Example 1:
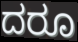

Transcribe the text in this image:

ದರೂ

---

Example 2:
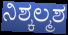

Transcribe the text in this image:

ನಿಶ್ಕಲ್ಮಶ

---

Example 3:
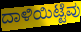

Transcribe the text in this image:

ದಾಳಿಯಿಟ್ಟೆವು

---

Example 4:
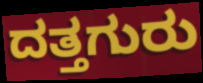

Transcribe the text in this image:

ದತ್ತಗುರು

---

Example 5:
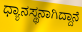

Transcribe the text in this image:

ಧ್ಯಾನಸ್ಥನಾಗಿದ್ದಾನೆ